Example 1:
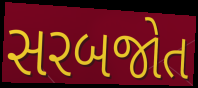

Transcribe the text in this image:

સરબજોત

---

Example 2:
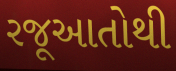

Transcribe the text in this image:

રજૂઆતોથી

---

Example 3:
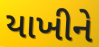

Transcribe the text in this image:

યાખીને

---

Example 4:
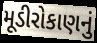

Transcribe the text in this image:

મૂડીરોકાણનું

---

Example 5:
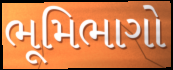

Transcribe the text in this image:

ભૂમિભાગો